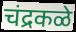
चंद्रकळे